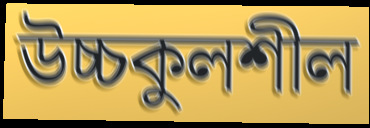
উচ্চকুলশীল